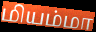
மியம்மா